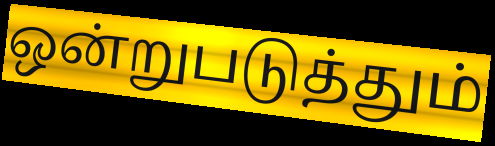
ஒன்றுபடுத்தும்